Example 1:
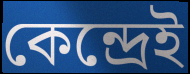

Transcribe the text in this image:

কেন্দ্রেই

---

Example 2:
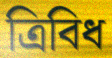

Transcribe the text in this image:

ত্রিবিধ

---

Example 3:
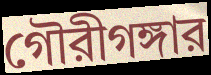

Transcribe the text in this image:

গৌরীগঙ্গার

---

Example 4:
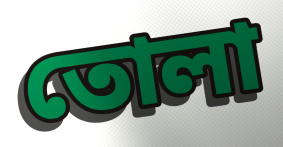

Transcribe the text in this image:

তোলা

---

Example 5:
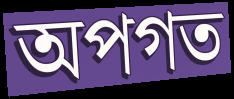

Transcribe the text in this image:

অপগত